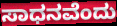
ಸಾಧನವೆಂದು